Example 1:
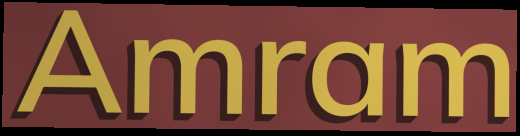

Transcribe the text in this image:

Amram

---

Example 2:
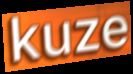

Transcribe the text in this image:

kuze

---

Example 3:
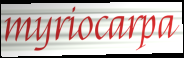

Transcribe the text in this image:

myriocarpa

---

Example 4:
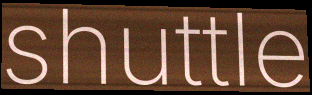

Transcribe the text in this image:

shuttle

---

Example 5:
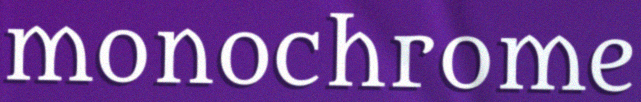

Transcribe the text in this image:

monochrome